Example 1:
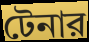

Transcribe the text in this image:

টেনার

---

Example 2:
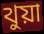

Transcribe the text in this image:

থুয়া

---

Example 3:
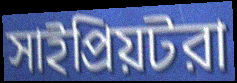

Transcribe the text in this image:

সাইপ্রিয়টরা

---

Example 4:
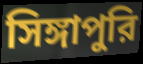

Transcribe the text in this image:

সিঙ্গাপুরি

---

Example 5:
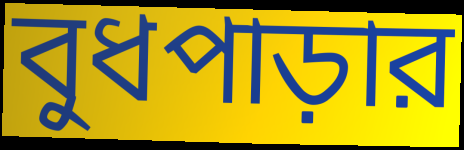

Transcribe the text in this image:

বুধপাড়ার